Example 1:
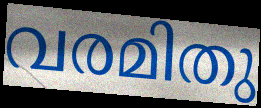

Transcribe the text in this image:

വരമിതു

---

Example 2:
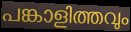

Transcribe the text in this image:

പങ്കാളിത്തവും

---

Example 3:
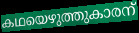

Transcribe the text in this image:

കഥയെഴുത്തുകാരന്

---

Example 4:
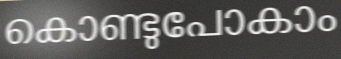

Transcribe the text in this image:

കൊണ്ടുപോകാം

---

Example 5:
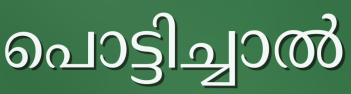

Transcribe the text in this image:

പൊട്ടിച്ചാൽ